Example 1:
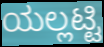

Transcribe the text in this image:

ಯಲ್ಲಟ್ಟಿ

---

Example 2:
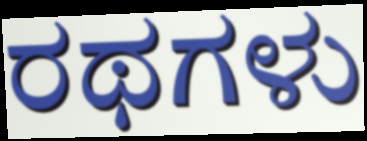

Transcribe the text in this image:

ರಥಗಳು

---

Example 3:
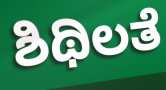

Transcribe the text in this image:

ಶಿಥಿಲತೆ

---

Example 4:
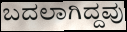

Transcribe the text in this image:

ಬದಲಾಗಿದ್ದವು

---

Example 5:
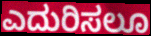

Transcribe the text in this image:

ಎದುರಿಸಲೂ